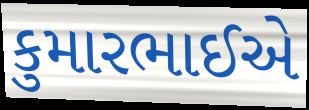
કુમારભાઈએ